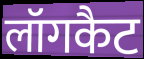
लॉगकैट